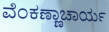
ವೆಂಕಣ್ಣಾಚಾರ್ಯ